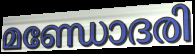
മണ്ഡോദരി